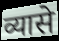
व्यासे